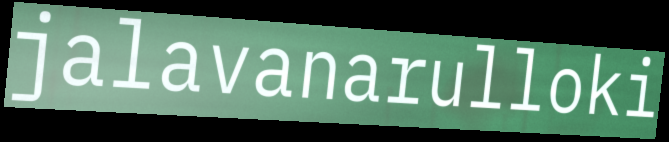
jalavanarulloki